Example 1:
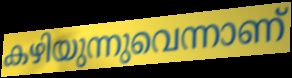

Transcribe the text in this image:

കഴിയുന്നുവെന്നാണ്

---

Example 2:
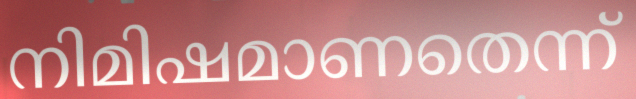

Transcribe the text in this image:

നിമിഷമാണതെന്ന്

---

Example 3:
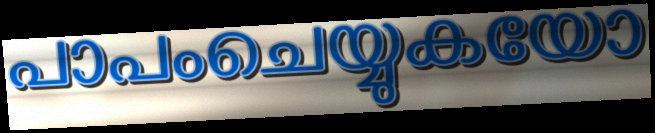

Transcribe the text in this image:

പാപംചെയ്യുകയോ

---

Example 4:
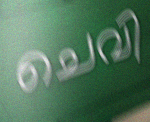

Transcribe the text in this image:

ചെവി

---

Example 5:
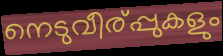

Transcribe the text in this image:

നെടുവീര്പ്പുകളും